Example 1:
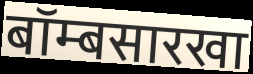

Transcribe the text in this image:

बॉम्बसारखा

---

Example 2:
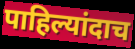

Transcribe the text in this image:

पाहिल्यांदाच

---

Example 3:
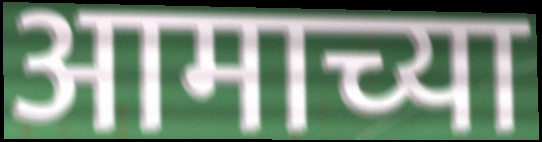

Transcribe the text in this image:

आमाच्या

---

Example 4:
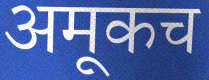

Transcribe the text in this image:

अमूकच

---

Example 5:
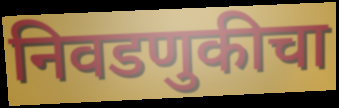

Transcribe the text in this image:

निवडणुकीचा